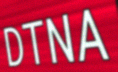
DTNA